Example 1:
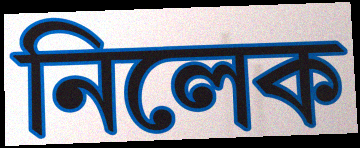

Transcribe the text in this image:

নিলেক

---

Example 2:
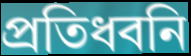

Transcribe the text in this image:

প্রতিধবনি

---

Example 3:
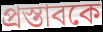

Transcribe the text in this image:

প্রস্তাবকে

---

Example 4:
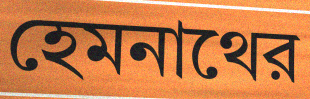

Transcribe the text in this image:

হেমনাথের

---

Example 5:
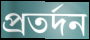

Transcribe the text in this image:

প্রতর্দন